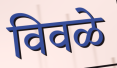
विवळे